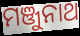
ମଞ୍ଜୁନାଥ